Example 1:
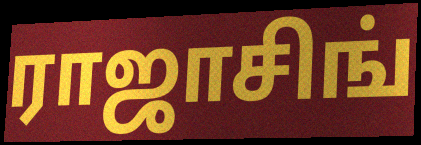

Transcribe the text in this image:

ராஜாசிங்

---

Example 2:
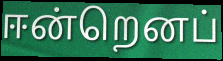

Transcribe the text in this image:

ஈன்றெனப்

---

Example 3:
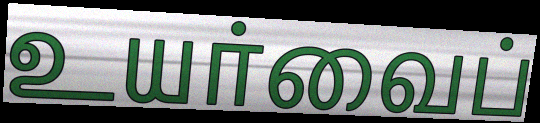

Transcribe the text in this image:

உயர்வைப்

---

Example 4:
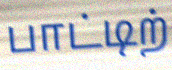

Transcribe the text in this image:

பாட்டிற்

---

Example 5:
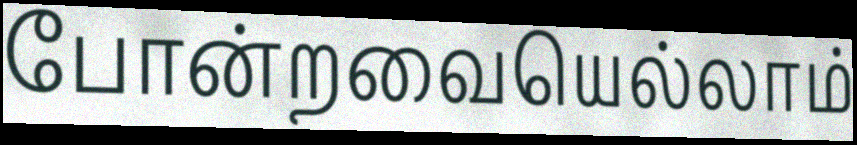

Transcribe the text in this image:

போன்றவையெல்லாம்